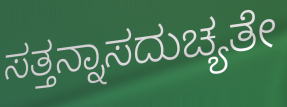
ಸತ್ತನ್ನಾಸದುಚ್ಯತೇ